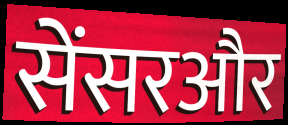
सेंसरऔर